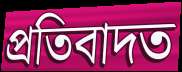
প্ৰতিবাদত